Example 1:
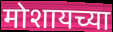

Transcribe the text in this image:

मोशायच्या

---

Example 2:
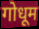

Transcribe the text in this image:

गोधूम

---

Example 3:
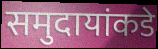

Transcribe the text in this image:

समुदायांकडे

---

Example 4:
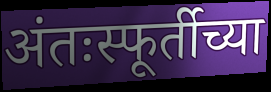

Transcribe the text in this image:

अंतःस्फूर्तीच्या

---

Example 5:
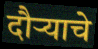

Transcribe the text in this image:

दौर्‍याचे